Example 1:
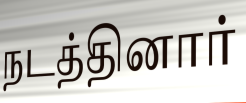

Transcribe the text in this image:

நடத்தினார்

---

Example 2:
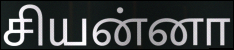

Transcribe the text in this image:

சியன்னா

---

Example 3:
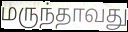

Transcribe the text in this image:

மருந்தாவது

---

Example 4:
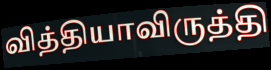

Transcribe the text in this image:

வித்தியாவிருத்தி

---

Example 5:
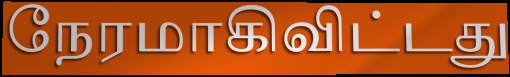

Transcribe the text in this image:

நேரமாகிவிட்டது